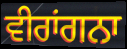
ਵੀਰਾਂਗਨਾ